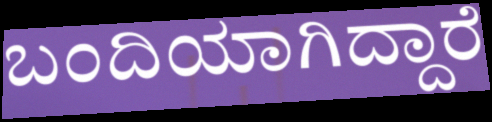
ಬಂದಿಯಾಗಿದ್ದಾರೆ